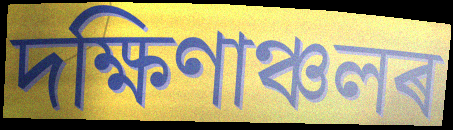
দক্ষিণাঞ্চলৰ